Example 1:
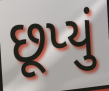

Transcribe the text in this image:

છૂપ્યું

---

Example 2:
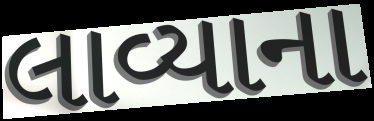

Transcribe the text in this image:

લાવ્યાના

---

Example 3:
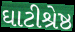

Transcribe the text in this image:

ઘાટીશ્રેષ્ઠ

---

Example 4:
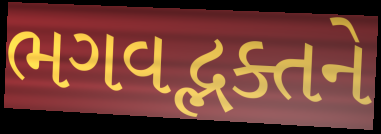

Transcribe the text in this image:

ભગવદ્ભક્તને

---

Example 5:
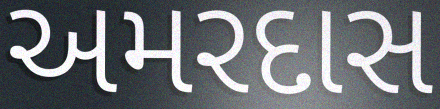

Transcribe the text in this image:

અમરદાસ